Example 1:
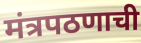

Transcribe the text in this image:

मंत्रपठणाची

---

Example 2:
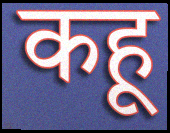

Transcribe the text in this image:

कहू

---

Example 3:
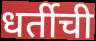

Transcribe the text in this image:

धर्तीची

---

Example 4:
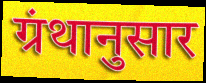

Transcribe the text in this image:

ग्रंथानुसार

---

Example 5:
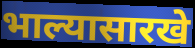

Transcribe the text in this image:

भाल्यासारखे